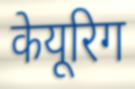
केयूरिग